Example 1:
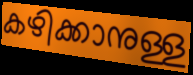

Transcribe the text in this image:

കഴിക്കാനുള്ള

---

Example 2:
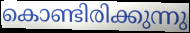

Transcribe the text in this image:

കൊണ്ടിരിക്കുന്നു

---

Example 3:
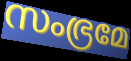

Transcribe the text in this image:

സംഭ്രമേ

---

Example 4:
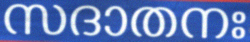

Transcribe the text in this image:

സദാതനഃ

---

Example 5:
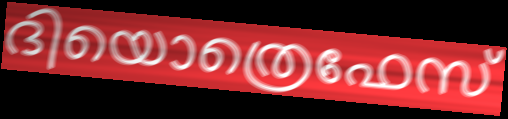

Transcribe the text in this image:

ദിയൊത്രെഫേസ്